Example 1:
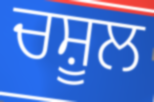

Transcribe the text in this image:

ਚਸ਼ੂਲ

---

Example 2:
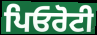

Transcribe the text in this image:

ਪਿਓਰੋਟੀ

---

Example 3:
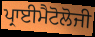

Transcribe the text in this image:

ਪ੍ਰਾਈਮੈਟੋਲੋਜੀ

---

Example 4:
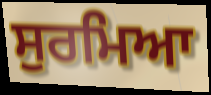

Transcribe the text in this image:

ਸੁਰਮਿਆ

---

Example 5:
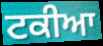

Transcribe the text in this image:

ਟਕੀਆ